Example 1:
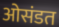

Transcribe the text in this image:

ओसंडत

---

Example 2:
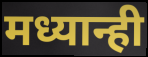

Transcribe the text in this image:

मध्यान्ही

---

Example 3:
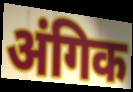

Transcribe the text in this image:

अंगिक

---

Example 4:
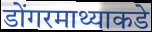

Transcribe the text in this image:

डोंगरमाथ्याकडे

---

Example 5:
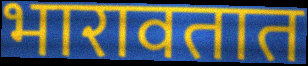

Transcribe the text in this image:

भारावतात